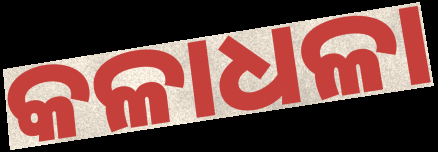
କଳାଧଳା